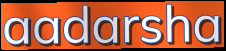
aadarsha